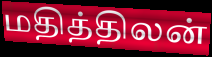
மதித்திலன்